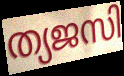
ത്യജസി